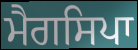
ਮੈਗਸਿਪਾ